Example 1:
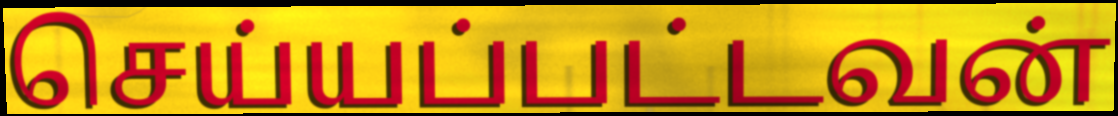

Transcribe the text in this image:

செய்யப்பட்டவன்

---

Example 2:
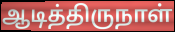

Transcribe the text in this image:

ஆடித்திருநாள்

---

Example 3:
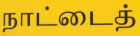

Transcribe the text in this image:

நாட்டைத்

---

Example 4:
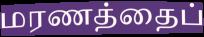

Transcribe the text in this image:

மரணத்தைப்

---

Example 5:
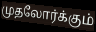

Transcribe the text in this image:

முதலோர்க்கும்